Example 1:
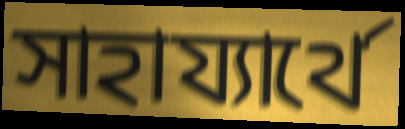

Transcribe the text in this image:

সাহায্যাৰ্থে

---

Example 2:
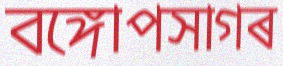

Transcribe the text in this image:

বঙ্গোপসাগৰ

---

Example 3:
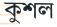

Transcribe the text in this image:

কুশল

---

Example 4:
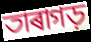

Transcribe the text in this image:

তাৰাগড়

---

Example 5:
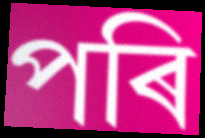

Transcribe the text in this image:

পৰি